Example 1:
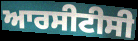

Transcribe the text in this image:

ਆਰਸੀਟੀਸੀ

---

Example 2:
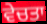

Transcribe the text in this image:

ਵੇਚਤਾ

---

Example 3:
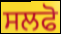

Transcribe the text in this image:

ਸਲਫੋ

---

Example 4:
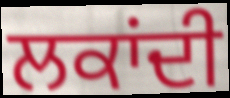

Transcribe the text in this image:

ਲਕਾਂਦੀ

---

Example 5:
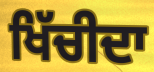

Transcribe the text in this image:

ਖਿੱਚੀਦਾ